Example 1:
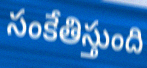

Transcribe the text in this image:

సంకేతిస్తుంది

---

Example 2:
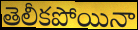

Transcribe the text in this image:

తెలీకపోయినా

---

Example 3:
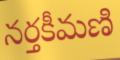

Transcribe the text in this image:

నర్తకీమణి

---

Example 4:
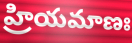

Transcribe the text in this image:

హ్రియమాణః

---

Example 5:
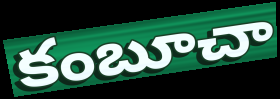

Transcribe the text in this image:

కంబూచా